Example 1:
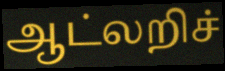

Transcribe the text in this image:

ஆட்லறிச்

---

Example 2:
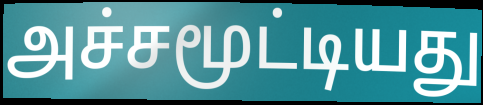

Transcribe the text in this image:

அச்சமூட்டியது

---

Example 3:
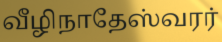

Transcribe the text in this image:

வீழிநாதேஸ்வரர்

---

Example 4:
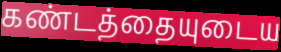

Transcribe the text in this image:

கண்டத்தையுடைய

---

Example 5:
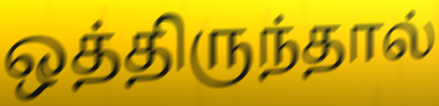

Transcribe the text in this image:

ஒத்திருந்தால்